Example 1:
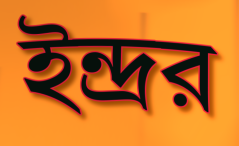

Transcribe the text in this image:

ইন্দ্রর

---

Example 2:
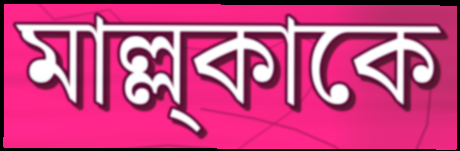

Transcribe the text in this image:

মাল্ল্কাকে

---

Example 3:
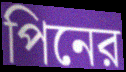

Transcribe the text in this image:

পিনের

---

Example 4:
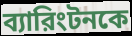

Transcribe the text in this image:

ব্যারিংটনকে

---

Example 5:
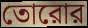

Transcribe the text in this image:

তোরোর